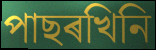
পাছৰখিনি